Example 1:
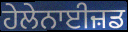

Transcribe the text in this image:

ਹੇਲੇਨਾਈਜ਼ਡ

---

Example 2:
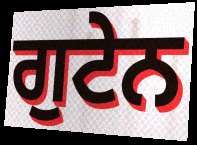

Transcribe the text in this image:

ਗੁਟੇਨ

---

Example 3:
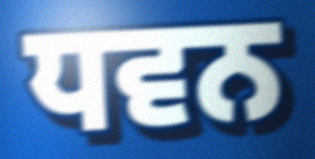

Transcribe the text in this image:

ਧਵਨ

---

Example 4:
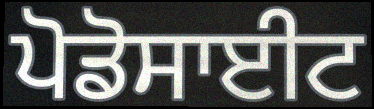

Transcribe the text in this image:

ਪੋਡੋਸਾਈਟ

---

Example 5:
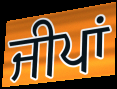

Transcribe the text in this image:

ਜੀਪਾਂ